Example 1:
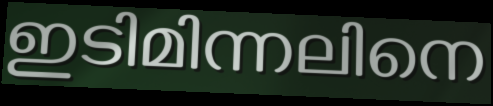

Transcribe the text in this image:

ഇടിമിന്നലിനെ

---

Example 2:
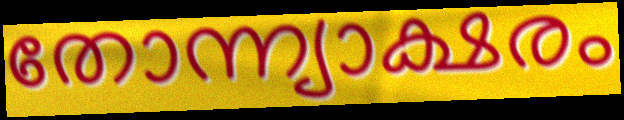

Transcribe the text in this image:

തോന്ന്യാക്ഷരം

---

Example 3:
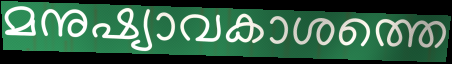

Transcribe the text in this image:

മനുഷ്യാവകാശത്തെ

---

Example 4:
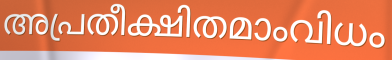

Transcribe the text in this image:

അപ്രതീക്ഷിതമാംവിധം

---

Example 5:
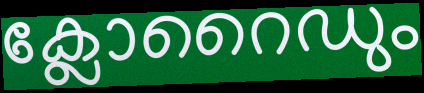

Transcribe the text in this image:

ക്ലോറൈഡും